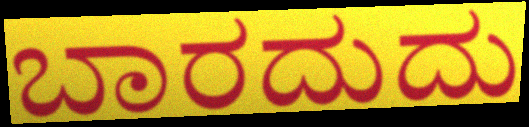
ಬಾರದುದು